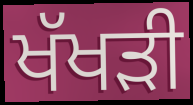
ਖੱਖੜੀ